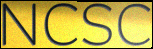
NCSC